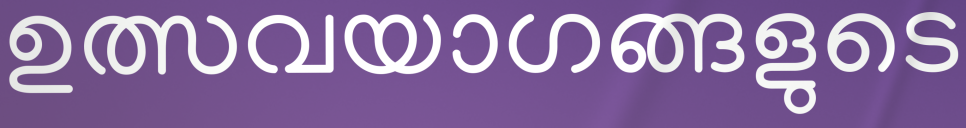
ഉത്സവയാഗങ്ങളുടെ